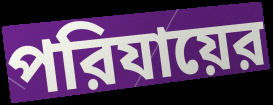
পরিযায়ের